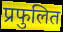
प्रफुलित